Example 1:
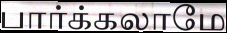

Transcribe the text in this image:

பார்க்கலாமே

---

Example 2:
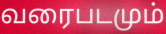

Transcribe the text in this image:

வரைபடமும்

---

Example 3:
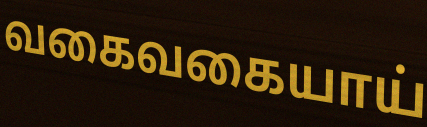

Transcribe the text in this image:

வகைவகையாய்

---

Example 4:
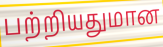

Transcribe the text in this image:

பற்றியதுமான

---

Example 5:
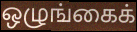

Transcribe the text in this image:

ஒழுங்கைக்